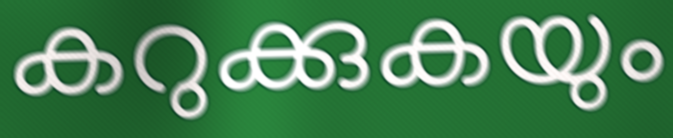
കറുക്കുകയും